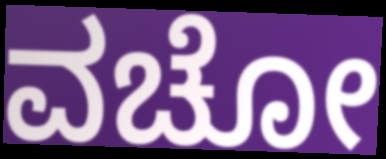
ವಚೋ